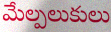
మేల్పలుకులు